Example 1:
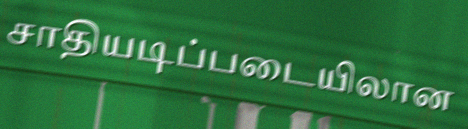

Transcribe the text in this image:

சாதியடிப்படையிலான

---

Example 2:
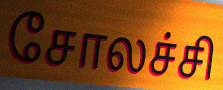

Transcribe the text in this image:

சோலச்சி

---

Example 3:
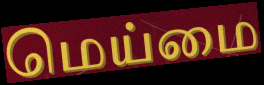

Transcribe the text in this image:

மெய்மை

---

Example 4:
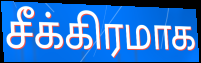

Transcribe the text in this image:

சீக்கிரமாக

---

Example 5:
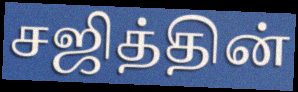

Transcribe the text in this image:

சஜித்தின்